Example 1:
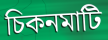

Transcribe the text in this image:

চিকনমাটি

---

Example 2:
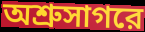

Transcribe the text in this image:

অশ্রুসাগরে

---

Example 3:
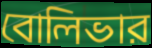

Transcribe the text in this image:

বোলিভার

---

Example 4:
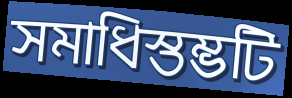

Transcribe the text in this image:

সমাধিস্তম্ভটি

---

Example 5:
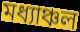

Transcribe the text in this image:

মধ্যাঞ্চল